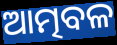
ଆତ୍ମବଳ